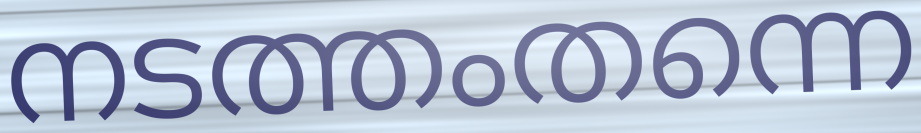
നടത്തംതന്നെ